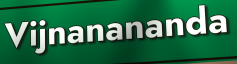
Vijnanananda